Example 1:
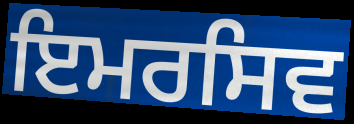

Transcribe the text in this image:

ਇਮਰਸਿਵ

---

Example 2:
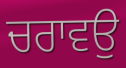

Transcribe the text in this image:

ਚਰਾਵਉ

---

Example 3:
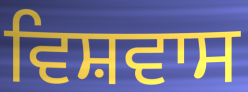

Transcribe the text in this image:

ਵਿਸ਼ਵਾਸ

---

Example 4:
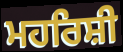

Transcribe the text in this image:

ਮਹਰਿਸ਼ੀ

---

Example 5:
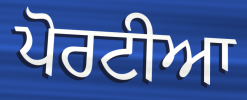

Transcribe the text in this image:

ਪੋਰਟੀਆ